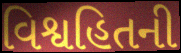
વિશ્વહિતની